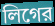
লিগের